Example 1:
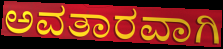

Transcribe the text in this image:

ಅವತಾರವಾಗಿ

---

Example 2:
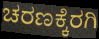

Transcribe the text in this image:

ಚರಣಕ್ಕೆರಗಿ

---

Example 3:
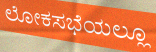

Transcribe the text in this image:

ಲೋಕಸಭೆಯಲ್ಲೂ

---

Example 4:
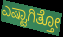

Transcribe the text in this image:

ಎಷ್ಟಾಗಿತ್ತೋ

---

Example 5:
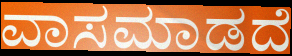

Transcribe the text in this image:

ವಾಸಮಾಡದೆ